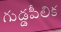
గుడ్డపీలిక